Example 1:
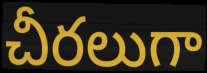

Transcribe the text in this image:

చీరలుగా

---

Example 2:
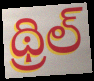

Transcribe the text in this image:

థ్రిల్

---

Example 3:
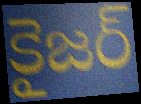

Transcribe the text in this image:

కైజర్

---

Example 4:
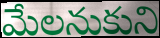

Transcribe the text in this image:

మేలనుకుని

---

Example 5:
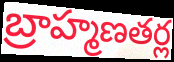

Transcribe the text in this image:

బ్రాహ్మణతర్ల